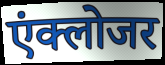
एंक्लोजर